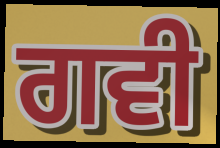
ਗਵੀ